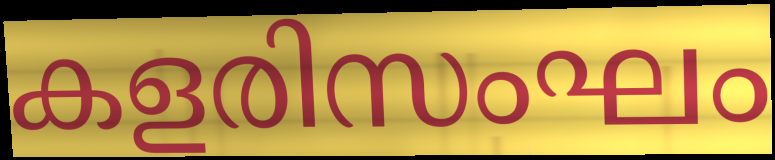
കളരിസംഘം